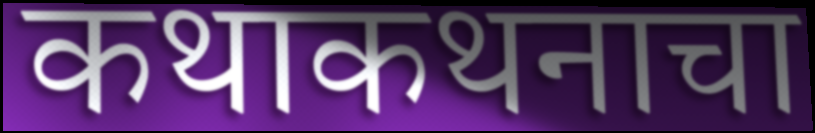
कथाकथनाचा